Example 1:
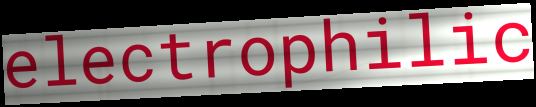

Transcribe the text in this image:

electrophilic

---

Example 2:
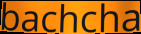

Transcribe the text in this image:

bachcha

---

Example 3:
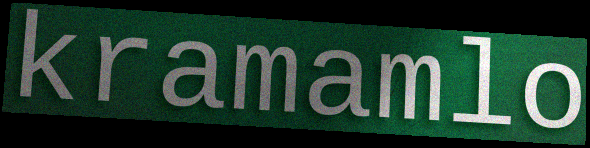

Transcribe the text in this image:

kramamlo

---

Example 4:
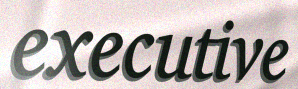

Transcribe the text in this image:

executive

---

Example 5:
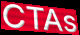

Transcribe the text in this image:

CTAs